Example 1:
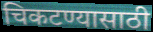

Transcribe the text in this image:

चिकटण्यासाठी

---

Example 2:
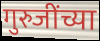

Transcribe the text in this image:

गुरुजींच्या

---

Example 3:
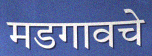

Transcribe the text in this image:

मडगावचे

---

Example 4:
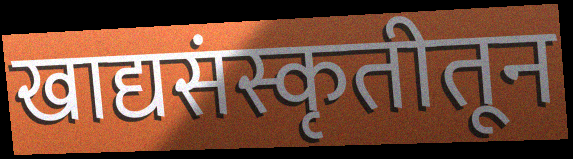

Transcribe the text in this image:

खाद्यसंस्कृतीतून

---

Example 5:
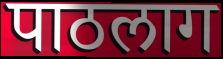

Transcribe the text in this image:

पाठलाग